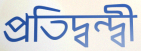
প্ৰতিদ্বন্দ্বী